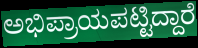
ಅಭಿಪ್ರಾಯಪಟ್ಟಿದ್ದಾರೆ